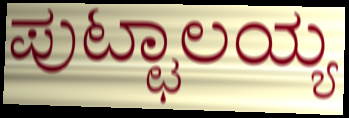
ಪುಟ್ಟಾಲಯ್ಯ